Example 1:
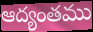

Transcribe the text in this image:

ఆద్యంతము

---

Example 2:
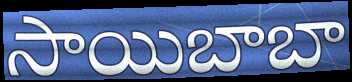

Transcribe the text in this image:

సాయిబాబా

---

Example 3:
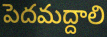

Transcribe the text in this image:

పెదమద్దాలి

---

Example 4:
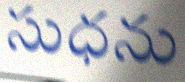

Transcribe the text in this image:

సుధను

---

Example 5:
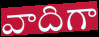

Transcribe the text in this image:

వాదిగా